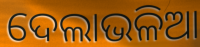
ଦେଲାଭଳିଆ